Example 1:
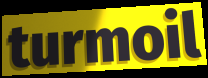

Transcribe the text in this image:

turmoil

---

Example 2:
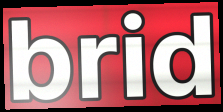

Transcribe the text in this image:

brid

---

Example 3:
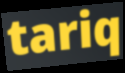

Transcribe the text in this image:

tariq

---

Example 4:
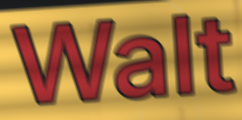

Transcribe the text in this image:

Walt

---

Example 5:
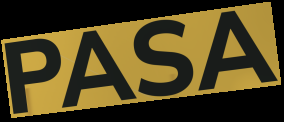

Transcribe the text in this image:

PASA